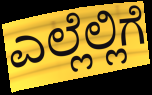
ಎಲ್ಲೆಲ್ಲಿಗೆ